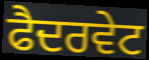
ਫੈਦਰਵੇਟ